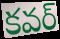
కవర్